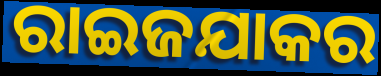
ରାଇଜଯାକର